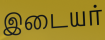
இடையர்